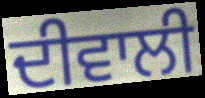
ਦੀਵਾਲੀ